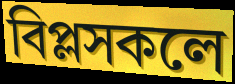
বিপ্লসকলে